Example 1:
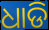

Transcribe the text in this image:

ଧାଡି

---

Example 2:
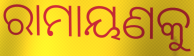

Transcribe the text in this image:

ରାମାୟଣକୁ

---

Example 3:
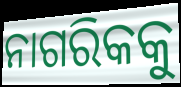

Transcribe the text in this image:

ନାଗରିକକୁ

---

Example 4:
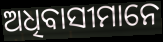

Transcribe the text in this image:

ଅଧିବାସୀମାନେ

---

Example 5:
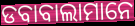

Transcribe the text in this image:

ଡବାବାଲାମାନେ